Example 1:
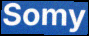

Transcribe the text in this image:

Somy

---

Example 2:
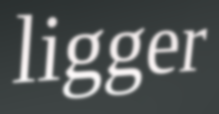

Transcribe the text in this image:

ligger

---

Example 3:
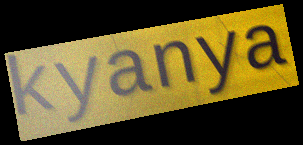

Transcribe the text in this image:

kyanya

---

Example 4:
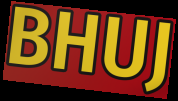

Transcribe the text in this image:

BHUJ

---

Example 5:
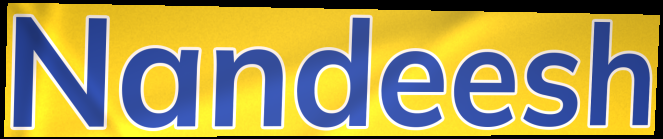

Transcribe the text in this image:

Nandeesh